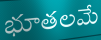
భూతలమే